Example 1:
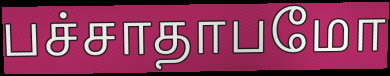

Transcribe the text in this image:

பச்சாதாபமோ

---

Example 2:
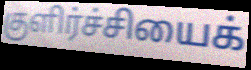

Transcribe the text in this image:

குளிர்ச்சியைக்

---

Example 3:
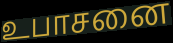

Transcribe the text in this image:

உபாசனை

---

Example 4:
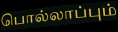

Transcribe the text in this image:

பொல்லாப்பும்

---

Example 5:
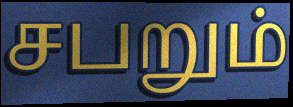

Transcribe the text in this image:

சபறும்